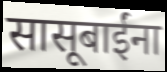
सासूबाईंना